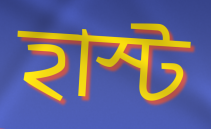
হাস্ট